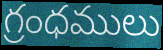
గ్రంధములు